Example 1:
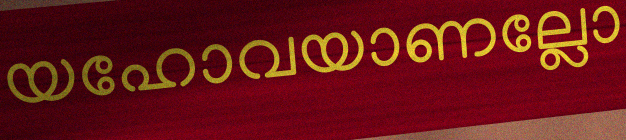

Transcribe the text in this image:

യഹോവയാണല്ലോ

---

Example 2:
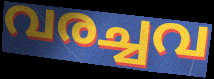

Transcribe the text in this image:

വരച്ചവ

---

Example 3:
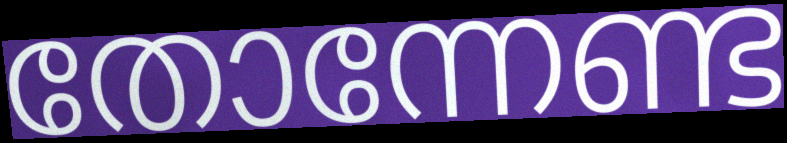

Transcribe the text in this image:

തോന്നേണ്ട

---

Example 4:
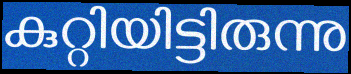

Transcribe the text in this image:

കുറ്റിയിട്ടിരുന്നു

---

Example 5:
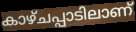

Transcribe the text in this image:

കാഴ്ചപ്പാടിലാണ്